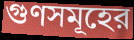
গুণসমূহের